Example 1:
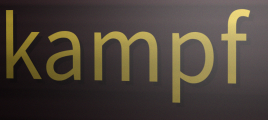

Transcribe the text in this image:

kampf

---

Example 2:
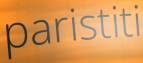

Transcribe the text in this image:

paristiti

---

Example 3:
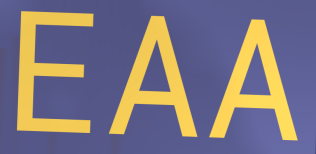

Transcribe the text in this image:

EAA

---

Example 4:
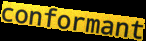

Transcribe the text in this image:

conformant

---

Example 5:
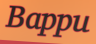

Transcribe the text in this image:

Bappu